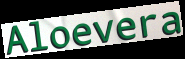
Aloevera